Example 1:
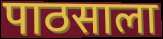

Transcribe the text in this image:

पाठसाला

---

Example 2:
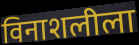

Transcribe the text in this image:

विनाशलीला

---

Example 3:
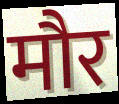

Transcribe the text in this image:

मौर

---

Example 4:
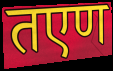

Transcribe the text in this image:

तएण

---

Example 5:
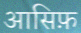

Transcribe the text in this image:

आसिफ़